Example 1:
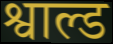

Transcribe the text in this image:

श्वाल्ड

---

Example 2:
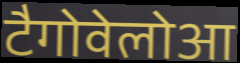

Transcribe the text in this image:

टैगोवेलोआ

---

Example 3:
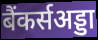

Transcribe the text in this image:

बैंकर्सअड्डा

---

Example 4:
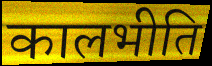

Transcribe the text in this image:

कालभीति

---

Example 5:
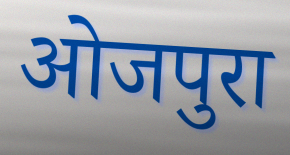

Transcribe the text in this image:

ओजपुरा